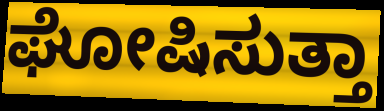
ಘೋಷಿಸುತ್ತಾ